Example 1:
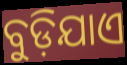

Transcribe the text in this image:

ବୁଡ଼ିଯାଏ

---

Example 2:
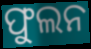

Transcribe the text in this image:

ଫୁଲନ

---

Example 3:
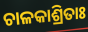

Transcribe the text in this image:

ଚାଳକାଶ୍ରିତାଃ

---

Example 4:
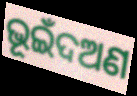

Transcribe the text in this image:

ଭୂଇଁଦଅଣ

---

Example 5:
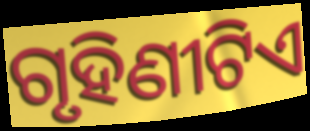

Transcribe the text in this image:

ଗୃହିଣୀଟିଏ